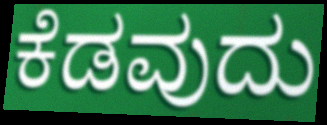
ಕೆಡವುದು